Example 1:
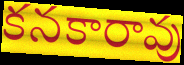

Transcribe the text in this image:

కనకారావు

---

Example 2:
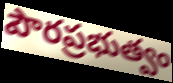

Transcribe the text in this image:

పౌరప్రభుత్వం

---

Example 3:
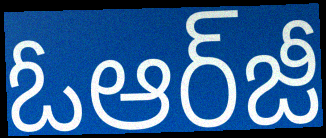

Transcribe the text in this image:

ఓఆర్‌జీ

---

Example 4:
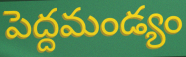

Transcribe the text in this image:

పెద్దమండ్యం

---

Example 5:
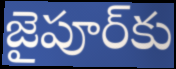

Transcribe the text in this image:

జైపూర్‌కు